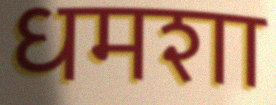
धमशा